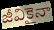
జీవికైనా